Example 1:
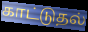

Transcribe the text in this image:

காட்டுதல்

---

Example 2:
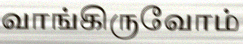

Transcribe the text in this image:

வாங்கிருவோம்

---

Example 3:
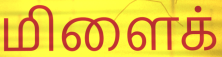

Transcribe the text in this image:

மிளைக்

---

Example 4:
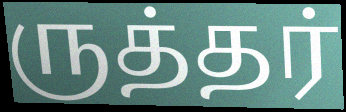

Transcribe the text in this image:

ருத்தர்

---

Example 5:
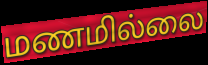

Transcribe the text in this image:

மணமில்லை